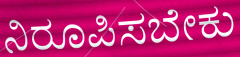
ನಿರೂಪಿಸಬೇಕು